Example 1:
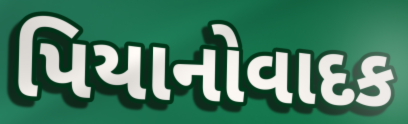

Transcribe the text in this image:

પિયાનોવાદક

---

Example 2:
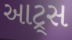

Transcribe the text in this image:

આટ્ર્સ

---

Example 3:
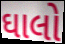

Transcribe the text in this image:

ઘાલો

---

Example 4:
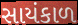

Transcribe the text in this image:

સાયંકાળ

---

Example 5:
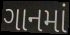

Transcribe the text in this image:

ગાનમાં